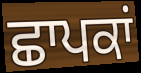
ਛਾਪਕਾਂ